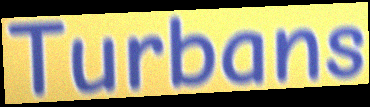
Turbans